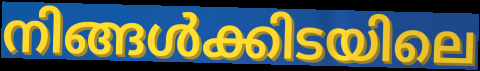
നിങ്ങൾക്കിടയിലെ